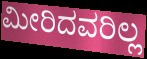
ಮೀರಿದವರಿಲ್ಲ